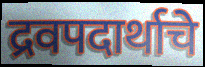
द्रवपदार्थाचे